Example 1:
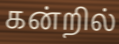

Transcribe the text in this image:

கன்றில்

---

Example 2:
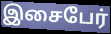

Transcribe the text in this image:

இசைபேர்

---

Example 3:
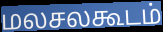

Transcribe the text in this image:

மலசலகூடம்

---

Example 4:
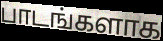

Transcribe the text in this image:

பாடங்களாக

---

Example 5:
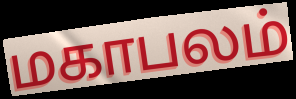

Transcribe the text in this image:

மகாபலம்